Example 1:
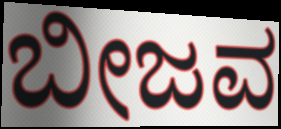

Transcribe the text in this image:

ಬೀಜವ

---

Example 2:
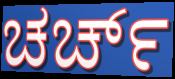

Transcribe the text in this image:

ಚರ್ಚ್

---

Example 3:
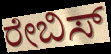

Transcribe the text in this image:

ರೇಬಿಸ್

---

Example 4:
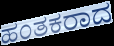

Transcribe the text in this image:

ಹಂತಕರಾದ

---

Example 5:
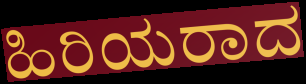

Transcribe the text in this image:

ಹಿರಿಯರಾದ